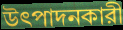
উৎপাদনকারী